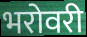
भरोवरी